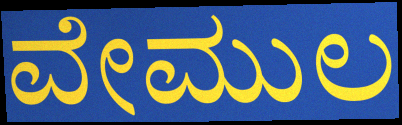
ವೇಮುಲ